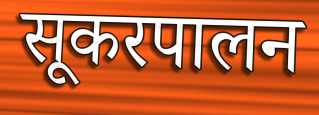
सूकरपालन